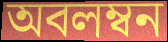
অবলম্বন